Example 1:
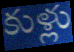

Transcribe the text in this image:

కుళ్లు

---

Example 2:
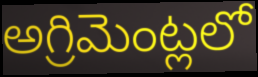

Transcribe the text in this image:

అగ్రిమెంట్లలో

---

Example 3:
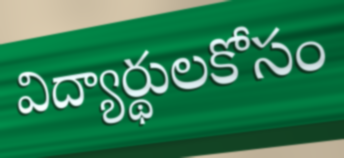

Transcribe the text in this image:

విద్యార్థులకోసం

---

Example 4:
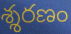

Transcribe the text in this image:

శ్శరణం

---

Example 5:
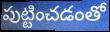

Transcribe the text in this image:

పుట్టించడంతో